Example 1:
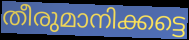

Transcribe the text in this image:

തീരുമാനിക്കട്ടെ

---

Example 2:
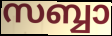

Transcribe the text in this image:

സബ്ബാ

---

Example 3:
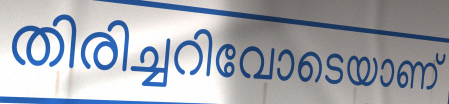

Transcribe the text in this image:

തിരിച്ചറിവോടെയാണ്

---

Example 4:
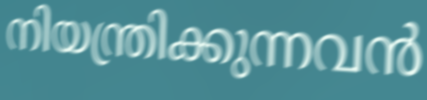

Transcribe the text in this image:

നിയന്ത്രിക്കുന്നവൻ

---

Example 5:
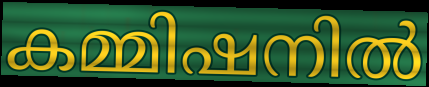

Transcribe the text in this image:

കമ്മിഷനിൽ